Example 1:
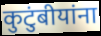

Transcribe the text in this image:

कुटुंबीयांना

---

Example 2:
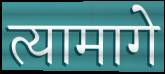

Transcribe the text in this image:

त्यामागे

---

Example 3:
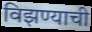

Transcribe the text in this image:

विझण्याची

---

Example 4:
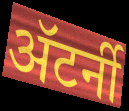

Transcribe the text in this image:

ॲटर्नी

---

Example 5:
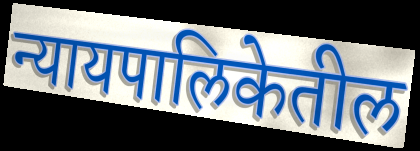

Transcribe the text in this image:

न्यायपालिकेतील